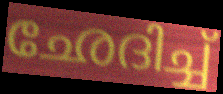
ഛേദിച്ച്